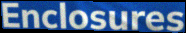
Enclosures